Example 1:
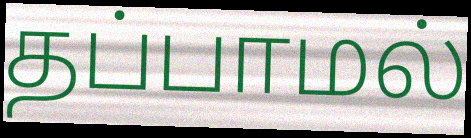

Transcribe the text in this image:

தப்பாமல்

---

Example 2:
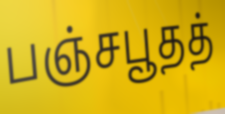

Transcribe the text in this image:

பஞ்சபூதத்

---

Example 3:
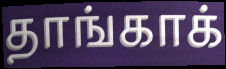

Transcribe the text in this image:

தாங்காக்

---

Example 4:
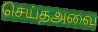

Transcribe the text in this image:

செய்தஅவை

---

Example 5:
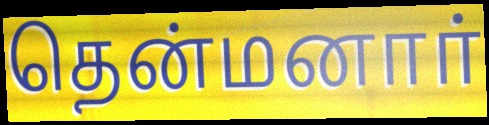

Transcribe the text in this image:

தென்மனார்